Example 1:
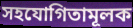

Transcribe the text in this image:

সহযোগিতামূলক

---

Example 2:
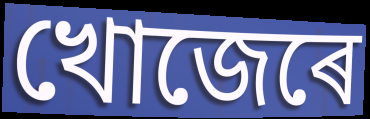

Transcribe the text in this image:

খোজেৰে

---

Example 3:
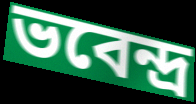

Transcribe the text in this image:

ভবেন্দ্ৰ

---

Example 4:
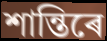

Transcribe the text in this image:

শান্তিৰে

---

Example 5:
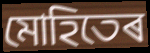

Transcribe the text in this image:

মোহিতেৰ